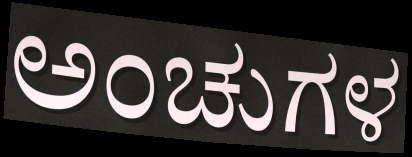
ಅಂಚುಗಳ